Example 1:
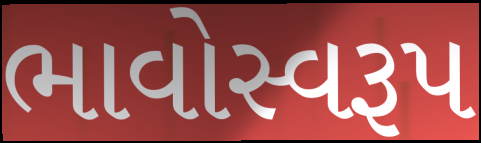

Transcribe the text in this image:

ભાવોસ્વરૂપ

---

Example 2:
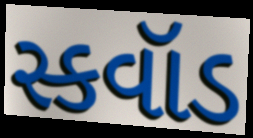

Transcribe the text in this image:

સ્કવૉડ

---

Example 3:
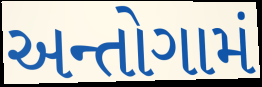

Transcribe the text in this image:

અન્તોગામં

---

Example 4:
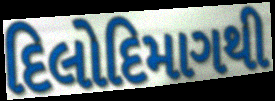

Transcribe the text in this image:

દિલોદિમાગથી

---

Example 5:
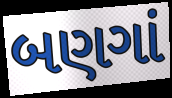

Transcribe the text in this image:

બણગાં